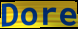
Dore